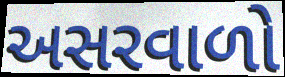
અસરવાળો